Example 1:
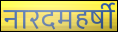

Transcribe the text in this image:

नारदमहर्षी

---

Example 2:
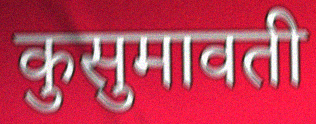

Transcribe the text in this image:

कुसुमावती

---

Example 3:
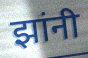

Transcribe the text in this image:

झांनी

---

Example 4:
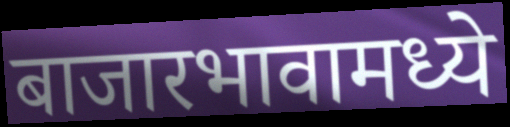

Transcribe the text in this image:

बाजारभावामध्ये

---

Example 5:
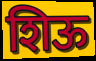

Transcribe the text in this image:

शिऊ